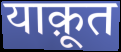
याक़ूत